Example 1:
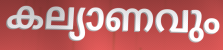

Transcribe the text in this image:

കല്യാണവും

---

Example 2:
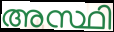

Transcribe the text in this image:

അസ്ഥി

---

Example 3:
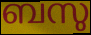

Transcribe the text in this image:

ബസു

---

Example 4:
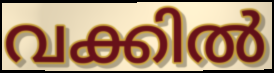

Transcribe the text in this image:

വക്കിൽ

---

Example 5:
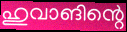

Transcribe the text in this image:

ഹുവാങിന്റെ